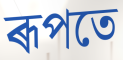
ৰূপতে